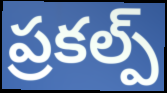
ప్రకల్ప్